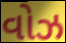
વોઝ